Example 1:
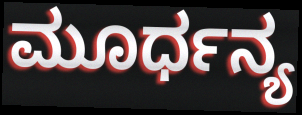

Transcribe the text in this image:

ಮೂರ್ಧನ್ಯ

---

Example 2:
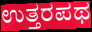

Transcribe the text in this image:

ಉತ್ತರಪಥ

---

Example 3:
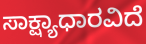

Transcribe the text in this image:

ಸಾಕ್ಷ್ಯಾಧಾರವಿದೆ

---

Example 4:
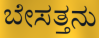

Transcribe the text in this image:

ಬೇಸತ್ತನು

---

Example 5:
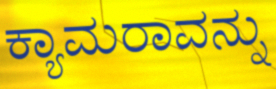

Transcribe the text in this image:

ಕ್ಯಾಮರಾವನ್ನು